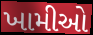
ખામીઓ